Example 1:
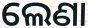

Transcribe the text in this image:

ଲେଣା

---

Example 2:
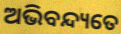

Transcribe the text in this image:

ଅଭିବନ୍ଦ୍ୟତେ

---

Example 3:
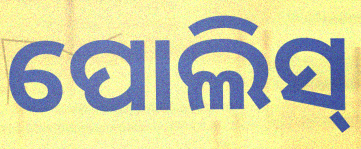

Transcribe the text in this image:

ପୋଲିସ୍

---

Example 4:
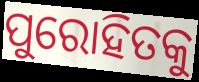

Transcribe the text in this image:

ପୁରୋହିତକୁ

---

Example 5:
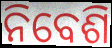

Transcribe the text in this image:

ନିବେଶି